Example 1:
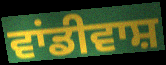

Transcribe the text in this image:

ਵਾਂਡੀਵਾਸ਼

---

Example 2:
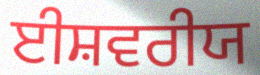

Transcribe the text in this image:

ਈਸ਼ਵਰੀਯ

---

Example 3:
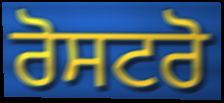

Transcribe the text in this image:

ਰੋਸਟਰੋ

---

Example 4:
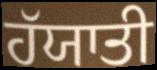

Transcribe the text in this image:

ਹੱਯਾਤੀ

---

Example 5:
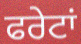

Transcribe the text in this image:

ਫਰੇਟਾਂ